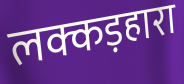
लक्कड़हारा